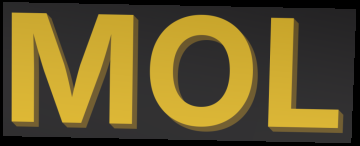
MOL